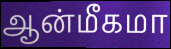
ஆன்மீகமா